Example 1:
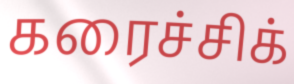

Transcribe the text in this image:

கரைச்சிக்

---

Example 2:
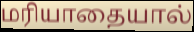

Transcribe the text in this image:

மரியாதையால்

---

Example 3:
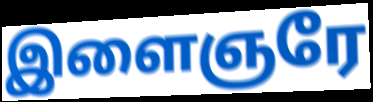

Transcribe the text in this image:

இளைஞரே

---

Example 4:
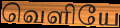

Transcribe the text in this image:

வெளியே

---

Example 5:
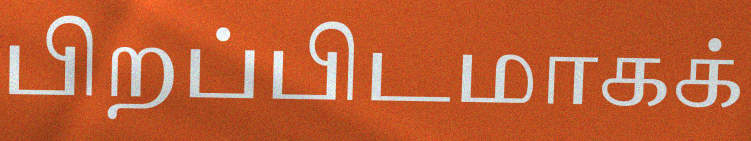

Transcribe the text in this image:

பிறப்பிடமாகக்